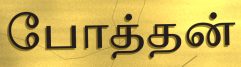
போத்தன்